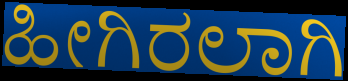
ಹೀಗಿರಲಾಗಿ